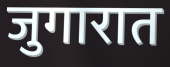
जुगारात